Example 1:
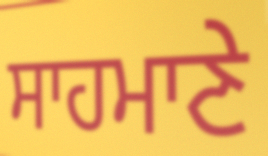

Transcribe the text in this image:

ਸਾਹਮਾਣੇ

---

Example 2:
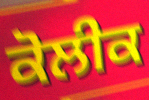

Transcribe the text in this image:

ਕੋਲੀਕ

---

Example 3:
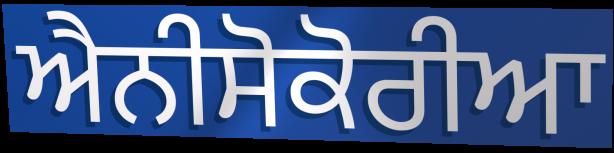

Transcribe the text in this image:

ਐਨੀਸੋਕੋਰੀਆ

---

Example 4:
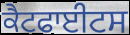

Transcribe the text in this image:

ਕੈਟਫਾਈਟਸ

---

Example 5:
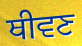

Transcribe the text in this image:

ਥੀਵਣ